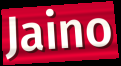
Jaino